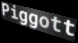
Piggott